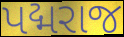
પદ્મરાજ